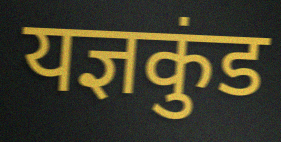
यज्ञकुंड